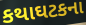
કથાઘટકના